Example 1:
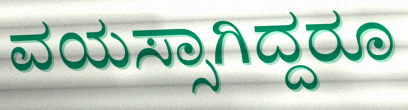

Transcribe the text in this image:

ವಯಸ್ಸಾಗಿದ್ದರೂ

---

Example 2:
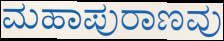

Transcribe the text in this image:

ಮಹಾಪುರಾಣವು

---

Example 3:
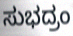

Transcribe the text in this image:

ಸುಭದ್ರಂ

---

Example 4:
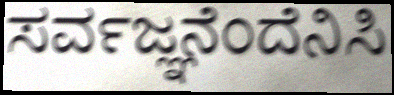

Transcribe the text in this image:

ಸರ್ವಜ್ಞನೆಂದೆನಿಸಿ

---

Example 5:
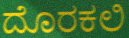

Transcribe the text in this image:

ದೊರಕಲಿ